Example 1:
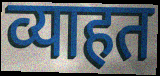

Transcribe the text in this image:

व्याहत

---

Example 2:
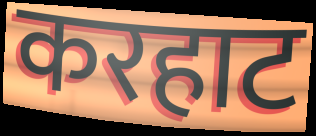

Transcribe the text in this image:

करहाट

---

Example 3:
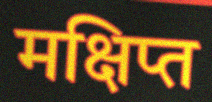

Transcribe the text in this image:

मक्षिप्त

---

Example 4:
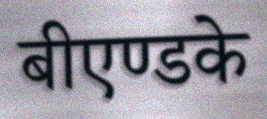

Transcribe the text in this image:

बीएण्डके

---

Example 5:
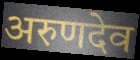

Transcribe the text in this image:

अरुणदेव